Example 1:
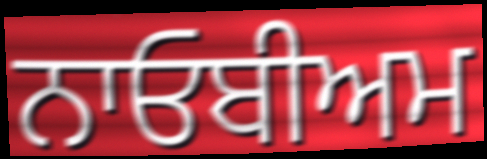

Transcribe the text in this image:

ਨਾਓਬੀਅਮ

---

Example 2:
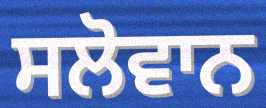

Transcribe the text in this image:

ਸਲੋਵਾਨ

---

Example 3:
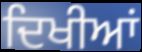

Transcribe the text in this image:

ਦਿਖੀਆਂ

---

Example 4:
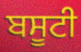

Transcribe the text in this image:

ਬਸੂਟੀ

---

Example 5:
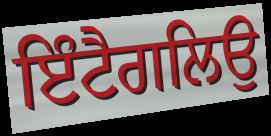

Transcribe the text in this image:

ਇੰਟੈਗਲਿਉ